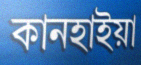
কানহাইয়া